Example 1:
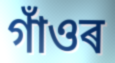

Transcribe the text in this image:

গাঁওৰ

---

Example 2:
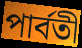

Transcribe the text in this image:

পাৰ্বতী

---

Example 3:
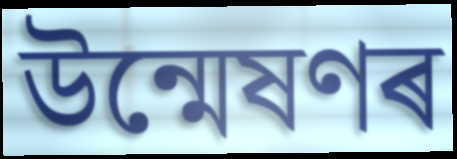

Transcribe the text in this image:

উন্মেষণৰ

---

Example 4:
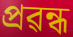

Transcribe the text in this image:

প্ৰৱন্ধ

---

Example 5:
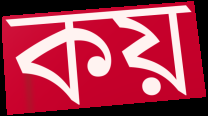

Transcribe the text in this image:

কয়